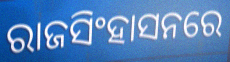
ରାଜସିଂହାସନରେ